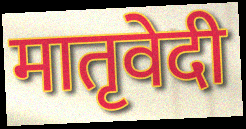
मातृवेदी